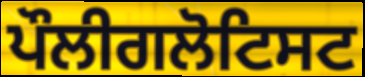
ਪੌਲੀਗਲੋਟਿਸਟ